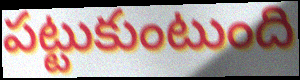
పట్టుకుంటుంది